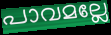
പാവമല്ലേ